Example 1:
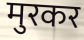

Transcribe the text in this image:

मुरकर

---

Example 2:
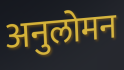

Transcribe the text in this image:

अनुलोमन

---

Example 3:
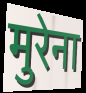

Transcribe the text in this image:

मुरेना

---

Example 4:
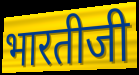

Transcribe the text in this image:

भारतीजी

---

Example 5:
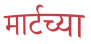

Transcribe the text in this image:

मार्टच्या